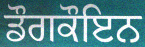
ਡੌਗਕੌਇਨ